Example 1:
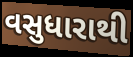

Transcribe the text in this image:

વસુધારાથી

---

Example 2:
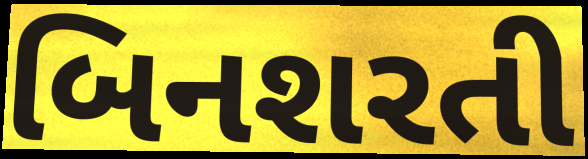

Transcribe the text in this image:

બિનશરતી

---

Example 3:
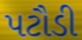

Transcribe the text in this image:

પટૌડી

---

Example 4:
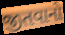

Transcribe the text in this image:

જીતવાનો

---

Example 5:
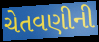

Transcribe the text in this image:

ચેતવણીની